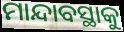
ମାନ୍ଦାବସ୍ଥାକୁ